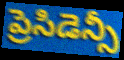
ప్రెసిడెన్సీ